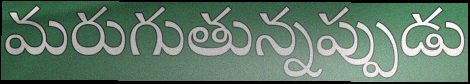
మరుగుతున్నప్పుడు